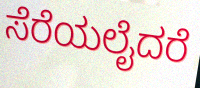
ಸೆರೆಯಲೈದರೆ